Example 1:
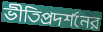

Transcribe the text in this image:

ভীতিপ্রদর্শনের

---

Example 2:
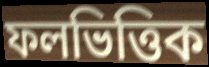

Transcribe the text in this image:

ফলভিত্তিক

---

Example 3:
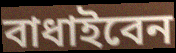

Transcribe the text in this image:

বাধাইবেন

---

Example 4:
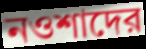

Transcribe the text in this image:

নওশাদের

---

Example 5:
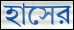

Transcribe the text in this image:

হাসের